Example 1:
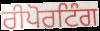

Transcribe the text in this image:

ਰੀਪੋਰਟਿੰਗ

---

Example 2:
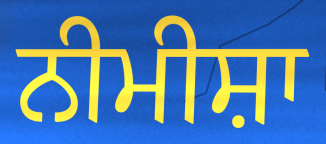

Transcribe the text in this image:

ਨੀਮੀਸ਼ਾ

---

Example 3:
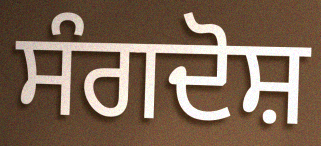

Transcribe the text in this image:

ਸੰਗਦੋਸ਼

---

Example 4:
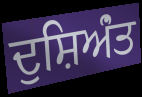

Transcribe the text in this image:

ਦੁਸ਼ਿਅਂੰਤ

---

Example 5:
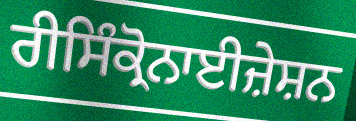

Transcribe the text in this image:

ਰੀਸਿੰਕ੍ਰੋਨਾਈਜ਼ੇਸ਼ਨ